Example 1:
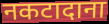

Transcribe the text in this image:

नकटादाना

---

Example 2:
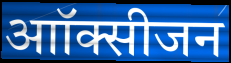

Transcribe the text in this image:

आॉक्सीजन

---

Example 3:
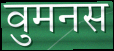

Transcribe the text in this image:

वुमनस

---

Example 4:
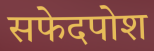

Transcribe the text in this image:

सफेदपोश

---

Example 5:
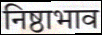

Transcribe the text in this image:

निष्ठाभाव